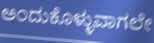
ಅಂದುಕೊಳ್ಳುವಾಗಲೇ